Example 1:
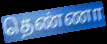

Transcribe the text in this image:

தெண்ணா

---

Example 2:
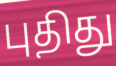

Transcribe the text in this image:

புதிது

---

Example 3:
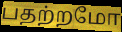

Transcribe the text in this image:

பதற்றமோ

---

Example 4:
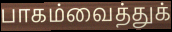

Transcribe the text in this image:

பாகம்வைத்துக்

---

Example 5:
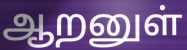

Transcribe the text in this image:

ஆறனுள்